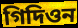
গিদিওন